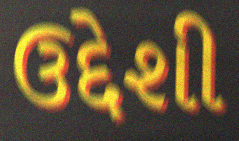
ઉદ્દેશી